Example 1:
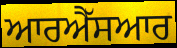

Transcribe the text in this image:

ਆਰਐੱਸਆਰ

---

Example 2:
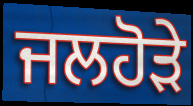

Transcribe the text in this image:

ਜਲਹੋੜੇ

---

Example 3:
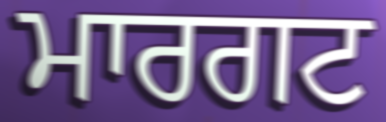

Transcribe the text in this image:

ਮਾਰਗਟ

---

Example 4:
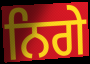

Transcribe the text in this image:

ਨਿਗੇ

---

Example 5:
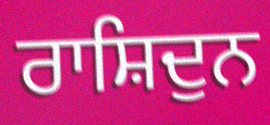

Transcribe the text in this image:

ਰਾਸ਼ਿਦੁਨ